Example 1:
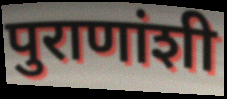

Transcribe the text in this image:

पुराणांशी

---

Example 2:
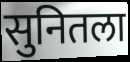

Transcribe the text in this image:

सुनितला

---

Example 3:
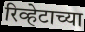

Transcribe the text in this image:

रिव्हेटाच्या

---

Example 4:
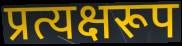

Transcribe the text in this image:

प्रत्यक्षरूप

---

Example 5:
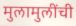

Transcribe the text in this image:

मुलामुलींची